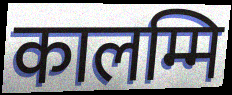
कालम्मि